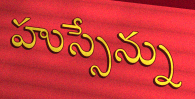
హుస్సేన్ను